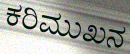
ಕರಿಮುಖನ